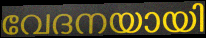
വേദനയായി